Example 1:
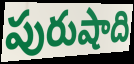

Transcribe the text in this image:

పురుషాది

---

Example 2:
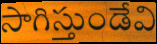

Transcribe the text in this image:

సాగిస్తుండేవి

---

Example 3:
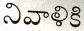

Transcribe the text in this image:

నివాళికి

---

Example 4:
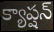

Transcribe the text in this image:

క్యాప్షన్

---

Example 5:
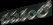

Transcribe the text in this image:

చషకంలో